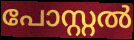
പോസ്റ്റൽ